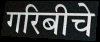
गरिबीचे